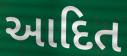
આદિત